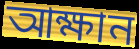
আক্ষান